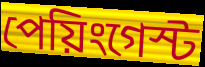
পেয়িংগেস্ট